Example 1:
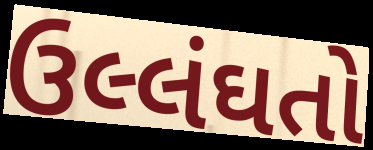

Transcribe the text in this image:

ઉલ્લંઘતો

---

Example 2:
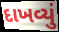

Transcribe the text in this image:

દાખવ્યું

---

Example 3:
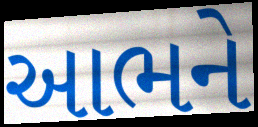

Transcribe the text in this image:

આભને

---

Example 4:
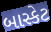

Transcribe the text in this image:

બાસ્કેટ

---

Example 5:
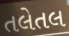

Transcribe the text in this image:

તલેતલ